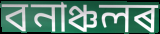
বনাঞ্চলৰ